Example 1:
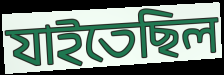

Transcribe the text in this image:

যাইতেছিল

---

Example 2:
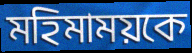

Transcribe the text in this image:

মহিমাময়কে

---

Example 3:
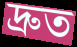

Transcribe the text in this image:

দ্রুত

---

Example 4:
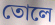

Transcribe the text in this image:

তোলে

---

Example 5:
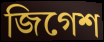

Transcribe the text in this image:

জিগেশ